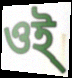
ওই্